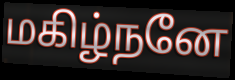
மகிழ்நனே